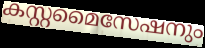
കസ്റ്റമൈസേഷനും